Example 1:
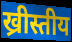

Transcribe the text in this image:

ख्रीस्तीय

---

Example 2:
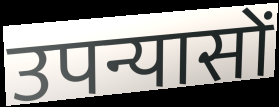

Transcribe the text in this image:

उपन्यासों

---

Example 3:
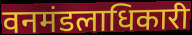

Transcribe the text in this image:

वनमंडलाधिकारी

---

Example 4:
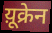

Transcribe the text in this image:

य़ूक्रेन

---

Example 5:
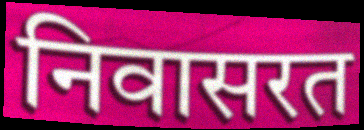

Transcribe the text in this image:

निवासरत